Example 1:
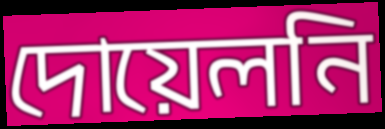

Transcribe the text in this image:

দোয়েলনি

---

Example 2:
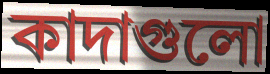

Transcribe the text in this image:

কাদাগুলো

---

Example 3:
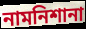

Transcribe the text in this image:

নামনিশানা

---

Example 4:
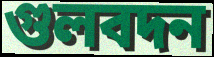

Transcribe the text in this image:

গুলবদন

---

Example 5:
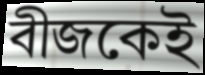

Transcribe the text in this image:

বীজকেই